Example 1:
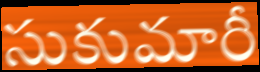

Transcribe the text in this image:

సుకుమారీ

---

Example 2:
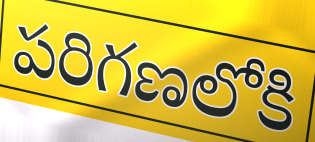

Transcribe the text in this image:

పరిగణలోకి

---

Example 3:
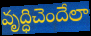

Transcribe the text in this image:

వృద్ధిచెందేలా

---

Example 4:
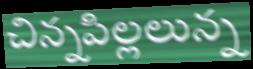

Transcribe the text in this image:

చిన్నపిల్లలున్న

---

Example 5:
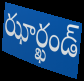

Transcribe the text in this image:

ఝార్ఖండ్